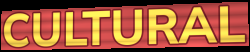
CULTURAL